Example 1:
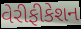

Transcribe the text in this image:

વેરીફીકેશન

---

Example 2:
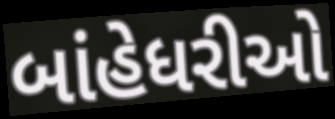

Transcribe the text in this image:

બાંહેધરીઓ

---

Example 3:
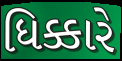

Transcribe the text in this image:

ધિક્કારે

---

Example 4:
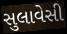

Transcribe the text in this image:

સુલાવેસી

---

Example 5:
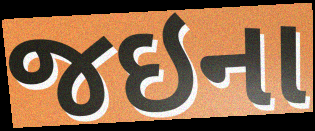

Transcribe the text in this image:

જઇના